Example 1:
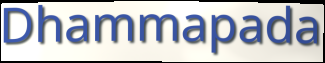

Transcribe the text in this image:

Dhammapada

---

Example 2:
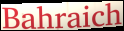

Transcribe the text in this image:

Bahraich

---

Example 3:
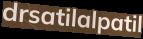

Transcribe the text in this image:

drsatilalpatil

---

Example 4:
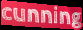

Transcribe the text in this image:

cunning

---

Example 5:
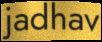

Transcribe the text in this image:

jadhav